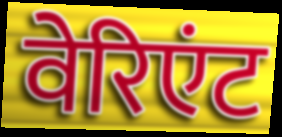
वेरिएंट